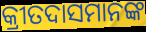
କ୍ରୀତଦାସମାନଙ୍କ